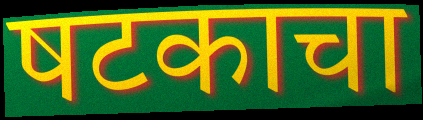
षटकाचा